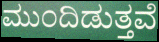
ಮುಂದಿಡುತ್ತವೆ